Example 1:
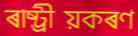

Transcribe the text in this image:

ৰাষ্ট্ৰীয়কৰণ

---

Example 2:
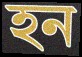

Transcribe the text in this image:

হন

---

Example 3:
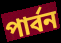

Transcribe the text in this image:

পাৰ্বন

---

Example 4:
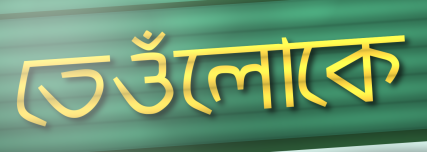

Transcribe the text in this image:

তেওঁলোকে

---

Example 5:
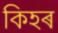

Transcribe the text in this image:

কিহৰ